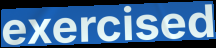
exercised